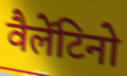
वैलेंटिनो